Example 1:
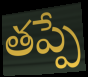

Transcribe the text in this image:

తప్పే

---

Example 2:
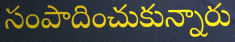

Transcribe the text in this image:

సంపాదించుకున్నారు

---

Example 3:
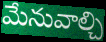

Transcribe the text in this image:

మేనువాల్చి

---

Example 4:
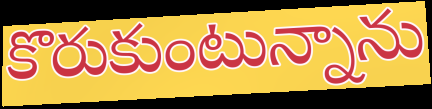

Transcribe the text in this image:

కొరుకుంటున్నాను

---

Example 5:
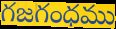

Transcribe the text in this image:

గజగంధము